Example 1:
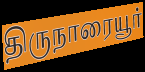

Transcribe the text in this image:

திருநாரையூர்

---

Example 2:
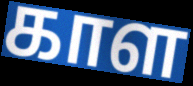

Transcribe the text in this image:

காள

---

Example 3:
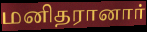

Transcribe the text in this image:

மனிதரானார்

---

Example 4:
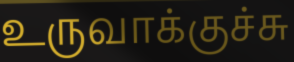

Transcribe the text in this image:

உருவாக்குச்சு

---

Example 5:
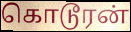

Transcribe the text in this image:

கொடூரன்